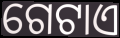
ଗେଟାଏ